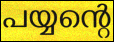
പയ്യന്റെ